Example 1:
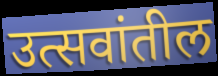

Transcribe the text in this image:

उत्सवांतील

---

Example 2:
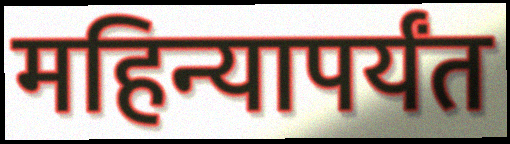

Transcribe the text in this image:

महिन्यापर्यंत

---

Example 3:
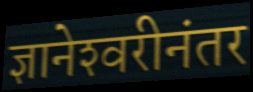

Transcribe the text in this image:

ज्ञानेश्वरीनंतर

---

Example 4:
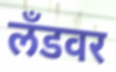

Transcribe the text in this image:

लँडवर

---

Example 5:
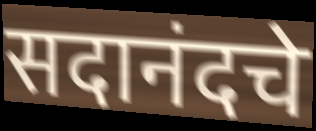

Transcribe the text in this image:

सदानंदचे